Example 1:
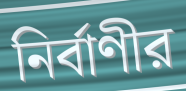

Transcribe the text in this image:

নির্বাণীর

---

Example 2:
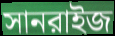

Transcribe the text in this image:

সানরাইজ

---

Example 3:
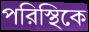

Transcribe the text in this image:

পরিস্থিকে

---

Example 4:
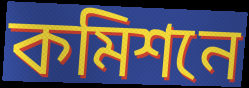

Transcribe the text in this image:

কমিশনে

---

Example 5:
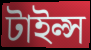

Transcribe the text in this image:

টাইল্স